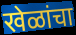
खेळांचा